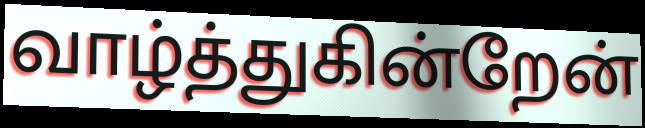
வாழ்த்துகின்றேன்